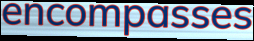
encompasses